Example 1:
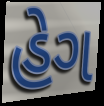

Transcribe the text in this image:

હેગ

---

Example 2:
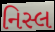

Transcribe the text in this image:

નિસ્લ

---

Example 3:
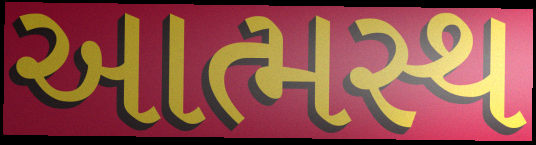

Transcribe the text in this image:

આત્મસ્થ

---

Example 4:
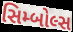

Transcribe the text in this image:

સિમ્બોલ્સ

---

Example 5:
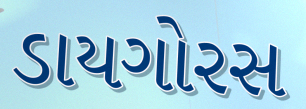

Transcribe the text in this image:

ડાયગોરસ